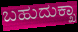
ಬಹುದುಕ್ಖಾ